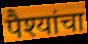
पैश्यांचा